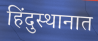
हिंदुस्थानात